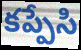
కప్పేసి